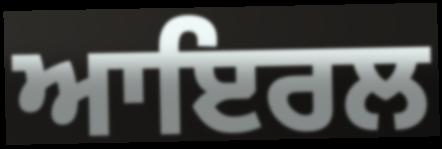
ਆਇਰਲ